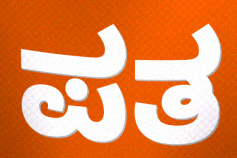
ಪತ